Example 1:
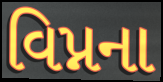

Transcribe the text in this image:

વિપ્નના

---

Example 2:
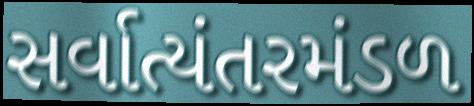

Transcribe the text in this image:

સર્વાત્યંતરમંડળ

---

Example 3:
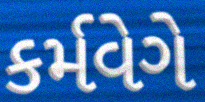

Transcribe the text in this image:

કર્મવેગે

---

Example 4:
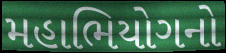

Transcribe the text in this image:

મહાભિયોગનો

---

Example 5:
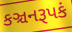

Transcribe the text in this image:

કઞ્ચનરૂપકં